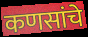
कणसांचे